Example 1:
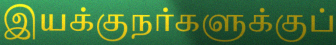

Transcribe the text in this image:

இயக்குநர்களுக்குப்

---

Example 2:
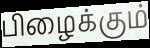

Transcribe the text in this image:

பிழைக்கும்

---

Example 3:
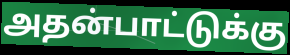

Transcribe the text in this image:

அதன்பாட்டுக்கு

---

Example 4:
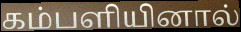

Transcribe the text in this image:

கம்பளியினால்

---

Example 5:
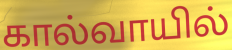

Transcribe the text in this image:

கால்வாயில்